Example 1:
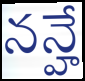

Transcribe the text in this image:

నన్హే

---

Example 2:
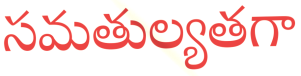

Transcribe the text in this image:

సమతుల్యతగా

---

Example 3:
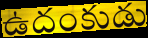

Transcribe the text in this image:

ఉదంకుడు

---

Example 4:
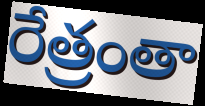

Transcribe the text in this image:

రేత్రంతా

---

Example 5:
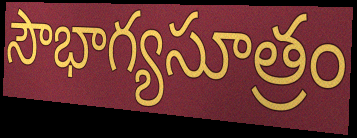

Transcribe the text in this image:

సౌభాగ్యసూత్రం